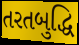
તરતબુદ્ધિ